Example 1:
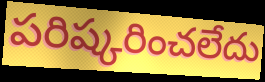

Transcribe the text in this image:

పరిష్కరించలేదు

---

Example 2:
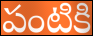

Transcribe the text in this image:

పంటికి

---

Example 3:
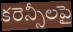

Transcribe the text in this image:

కరెన్సీలపై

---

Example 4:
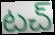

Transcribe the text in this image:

టచ్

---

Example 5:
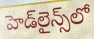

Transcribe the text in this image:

హెడ్‌లైన్స్‌లో